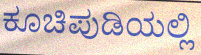
ಕೂಚಿಪುಡಿಯಲ್ಲಿ